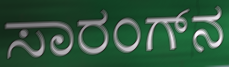
ಸಾರಂಗ್‌ನ